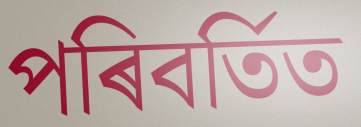
পৰিবৰ্তিত